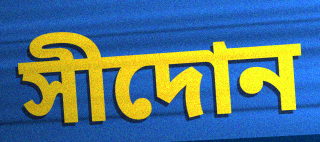
সীদোন